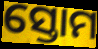
ସ୍ତୋମ